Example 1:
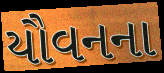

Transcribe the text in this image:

યૌવનના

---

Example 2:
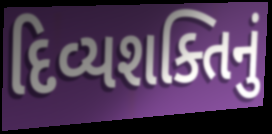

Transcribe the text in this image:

દિવ્યશક્તિનું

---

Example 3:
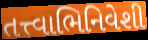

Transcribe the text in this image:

તત્ત્વાભિનિવેશી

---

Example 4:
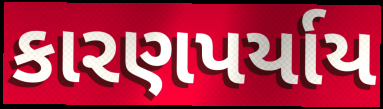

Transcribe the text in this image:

કારણપર્યાય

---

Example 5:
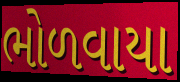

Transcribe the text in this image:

ભોળવાયા